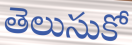
తెలుసుకో